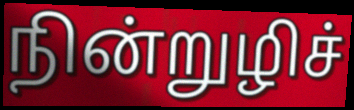
நின்றுழிச்